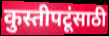
कुस्तीपटूंसाठी